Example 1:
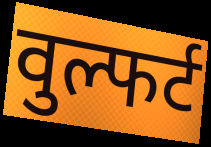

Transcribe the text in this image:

वुल्फर्ट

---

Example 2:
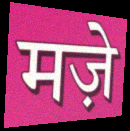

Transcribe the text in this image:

मज़े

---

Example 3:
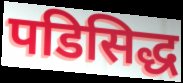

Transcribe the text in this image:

पडिसिद्ध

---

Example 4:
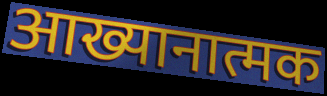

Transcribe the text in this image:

आख्यानात्मक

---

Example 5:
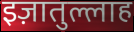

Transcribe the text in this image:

इज़ातुल्लाह